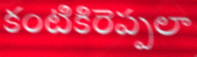
కంటికిరెప్పలా